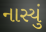
નાસ્યું